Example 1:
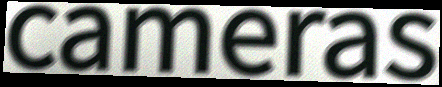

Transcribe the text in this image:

cameras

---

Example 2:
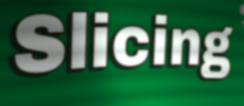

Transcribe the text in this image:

Slicing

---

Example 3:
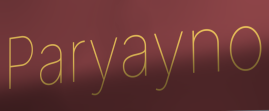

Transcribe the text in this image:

Paryayno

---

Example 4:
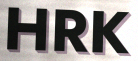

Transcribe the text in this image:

HRK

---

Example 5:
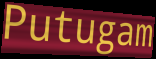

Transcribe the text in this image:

Putugam